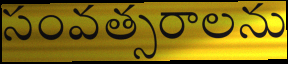
సంవత్సరాలను